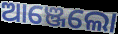
ଆଞ୍ଜେଲୋ